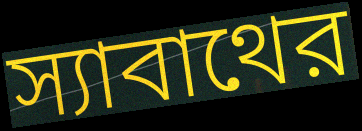
স্যাবাথের